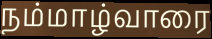
நம்மாழ்வாரை